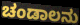
ಚಂಡಾಲನು